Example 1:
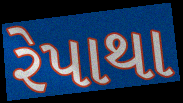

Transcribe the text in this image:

રેપાથા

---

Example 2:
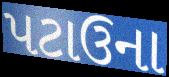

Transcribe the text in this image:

પટાઉના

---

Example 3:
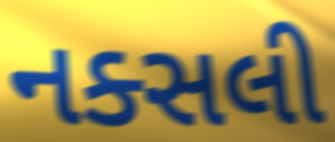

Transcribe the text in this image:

નક્સલી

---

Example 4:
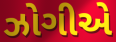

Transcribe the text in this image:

ઝોગીએ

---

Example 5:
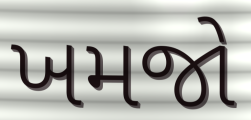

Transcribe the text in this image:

ખમજો